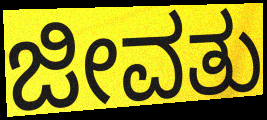
ಜೀವತು